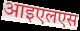
आइएलएस